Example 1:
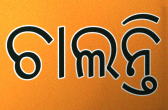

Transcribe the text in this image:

ଚାଲନ୍ତି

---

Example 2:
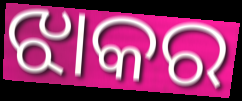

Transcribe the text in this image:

ଝାକର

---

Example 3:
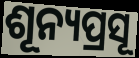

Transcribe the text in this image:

ଶୂନ୍ୟପ୍ରସୂ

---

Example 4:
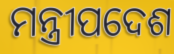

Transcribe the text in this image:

ମନ୍ତ୍ରୀପଦେଶ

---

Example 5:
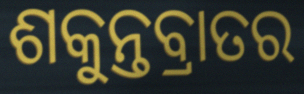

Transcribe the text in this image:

ଶକୁନ୍ତବ୍ରାତର